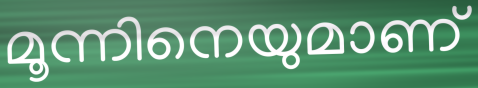
മൂന്നിനെയുമാണ്